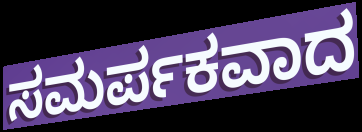
ಸಮರ್ಪಕವಾದ